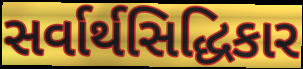
સર્વાર્થસિદ્ધિકાર